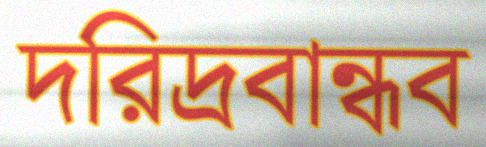
দরিদ্রবান্ধব